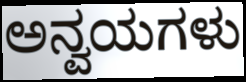
ಅನ್ವಯಗಳು